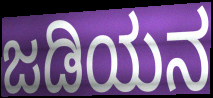
ಜಡಿಯನ